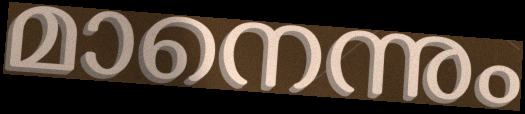
മാനെന്നും